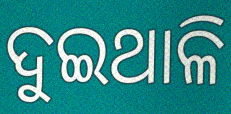
ଦୁଇଥାଳି